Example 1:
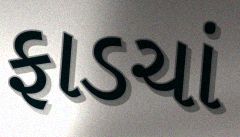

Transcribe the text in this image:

ફાડચાં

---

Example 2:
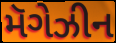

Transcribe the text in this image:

મૅગેઝીન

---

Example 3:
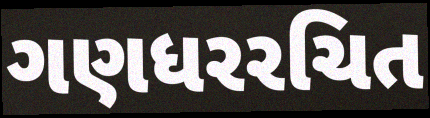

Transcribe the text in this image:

ગણધરરચિત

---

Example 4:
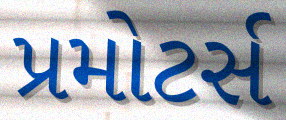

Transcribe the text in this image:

પ્રમોટર્સ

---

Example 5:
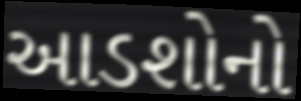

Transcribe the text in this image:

આડશોનો